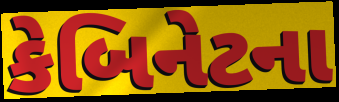
કેબિનેટના